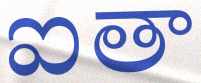
ఐతా